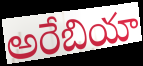
అరేబియా